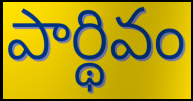
పార్థివం